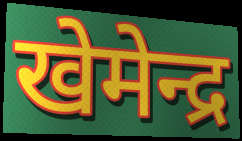
खेमेन्द्र